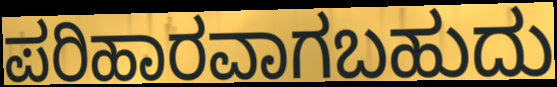
ಪರಿಹಾರವಾಗಬಹುದು